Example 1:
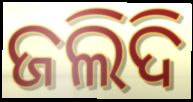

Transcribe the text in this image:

ଜଲିଦି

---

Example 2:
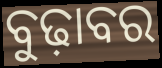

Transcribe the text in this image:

ବୁଢ଼ାବର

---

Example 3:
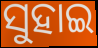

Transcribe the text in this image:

ସୁହାଇ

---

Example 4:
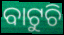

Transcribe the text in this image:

ବାଟୁଚି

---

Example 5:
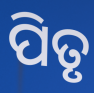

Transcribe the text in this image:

ପିତୃ